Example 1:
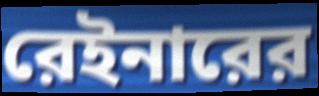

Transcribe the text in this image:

রেইনারের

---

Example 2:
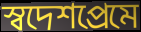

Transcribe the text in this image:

স্বদেশপ্রেমে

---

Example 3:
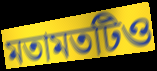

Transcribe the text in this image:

মতামতটিও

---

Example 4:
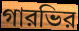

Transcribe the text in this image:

গারভির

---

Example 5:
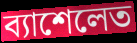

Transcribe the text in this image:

ব্যাশেলেত